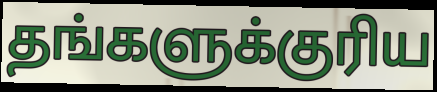
தங்களுக்குரிய